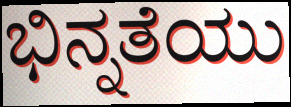
ಭಿನ್ನತೆಯು